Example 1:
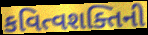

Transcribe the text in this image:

કવિત્વશક્તિની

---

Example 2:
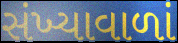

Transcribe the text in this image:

સંખ્યાવાળાં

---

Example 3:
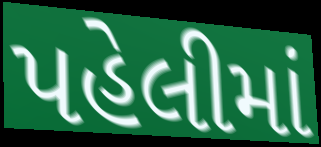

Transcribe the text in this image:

પહેલીમાં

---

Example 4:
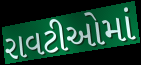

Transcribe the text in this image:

રાવટીઓમાં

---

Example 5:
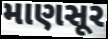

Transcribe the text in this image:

માણસૂર